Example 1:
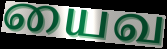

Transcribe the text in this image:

யைவ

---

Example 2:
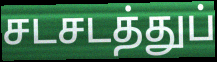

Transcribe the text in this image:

சடசடத்துப்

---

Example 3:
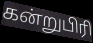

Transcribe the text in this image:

கன்றுபிரி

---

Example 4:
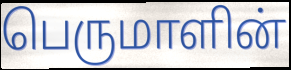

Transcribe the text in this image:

பெருமாளின்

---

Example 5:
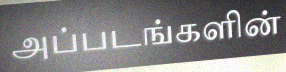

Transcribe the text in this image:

அப்படங்களின்